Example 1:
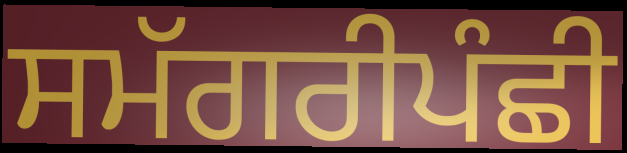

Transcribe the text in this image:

ਸਮੱਗਰੀਪੰਛੀ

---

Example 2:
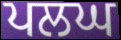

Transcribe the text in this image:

ਪਲਘ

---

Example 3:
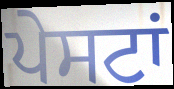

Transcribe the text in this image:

ਪੇਸਟਾਂ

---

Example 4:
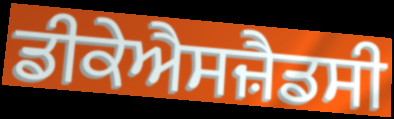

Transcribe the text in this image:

ਡੀਕੇਐਸਜ਼ੈਡਸੀ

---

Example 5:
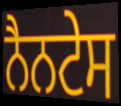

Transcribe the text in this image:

ਨੈਨਟੇਸ